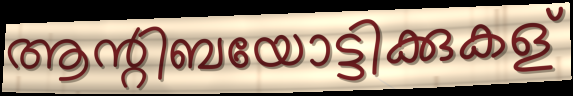
ആന്റിബയോട്ടിക്കുകള്